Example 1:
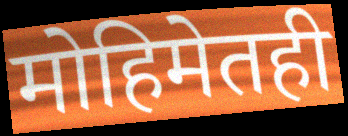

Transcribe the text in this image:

मोहिमेतही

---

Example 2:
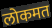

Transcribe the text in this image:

लोकमत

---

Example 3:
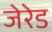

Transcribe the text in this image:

जेरेड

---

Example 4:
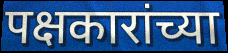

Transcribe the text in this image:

पक्षकारांच्या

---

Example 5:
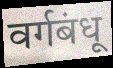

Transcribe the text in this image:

वर्गबंधू